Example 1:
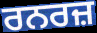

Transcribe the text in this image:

ਰਨਰਜ਼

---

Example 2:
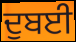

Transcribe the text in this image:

ਦੁਬਈ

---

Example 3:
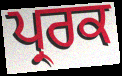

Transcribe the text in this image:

ਪ੍ਰਰਕ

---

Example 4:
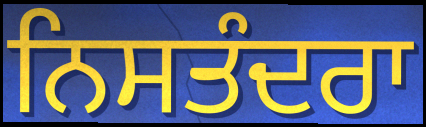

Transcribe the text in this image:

ਨਿਸਤੰਦਰਾ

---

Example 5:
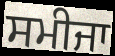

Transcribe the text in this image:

ਸਮੀਜਾ